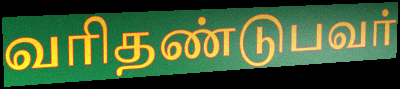
வரிதண்டுபவர்